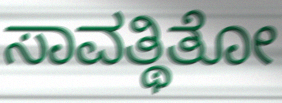
ಸಾವತ್ಥಿತೋ